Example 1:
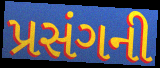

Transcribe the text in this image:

પ્રસંગની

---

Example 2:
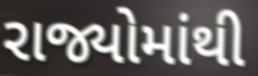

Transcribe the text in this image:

રાજ્યોમાંથી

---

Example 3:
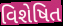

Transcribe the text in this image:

વિશેષિત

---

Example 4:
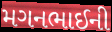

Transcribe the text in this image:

મગનભાઈની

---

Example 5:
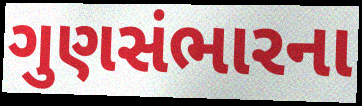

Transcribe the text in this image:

ગુણસંભારના